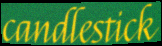
candlestick